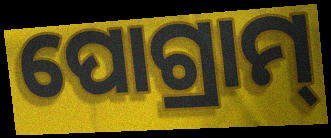
ପୋଗ୍ରାମ୍